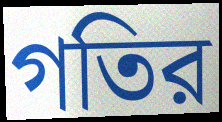
গতির